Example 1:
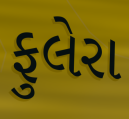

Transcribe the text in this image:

ફુલેરા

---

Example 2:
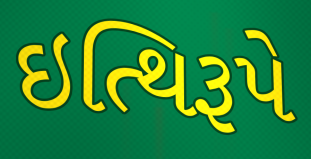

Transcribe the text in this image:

ઇત્થિરૂપે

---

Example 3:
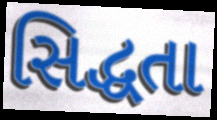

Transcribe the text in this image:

સિદ્ધતા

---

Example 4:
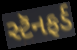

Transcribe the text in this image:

સ્ટૅનફર્ડ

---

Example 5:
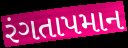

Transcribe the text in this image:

રંગતાપમાન